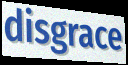
disgrace